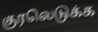
குரலெடுக்க